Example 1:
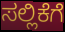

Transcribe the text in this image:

ಸಲ್ಲಿಕೆಗೆ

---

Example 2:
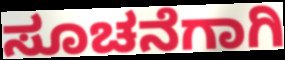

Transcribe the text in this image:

ಸೂಚನೆಗಾಗಿ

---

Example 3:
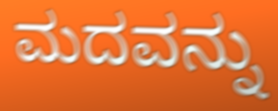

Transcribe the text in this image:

ಮದವನ್ನು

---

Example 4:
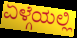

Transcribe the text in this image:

ಏಳ್ಗೆಯಲ್ಲಿ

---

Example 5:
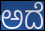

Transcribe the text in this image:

ಅದೆ